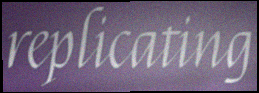
replicating